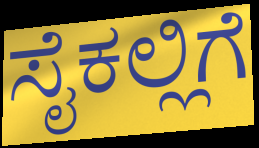
ಸೈಕಲ್ಲಿಗೆ